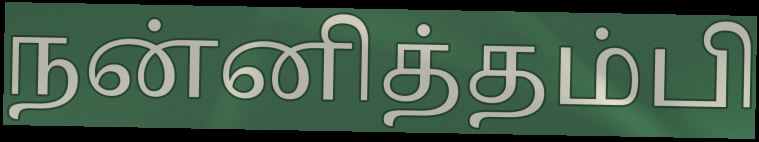
நன்னித்தம்பி